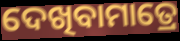
ଦେଖିବାମାତ୍ରେ